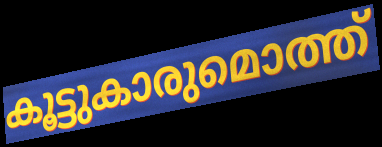
കൂട്ടുകാരുമൊത്ത്